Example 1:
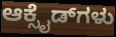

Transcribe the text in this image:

ಆಕ್ಸೈಡ್‌ಗಳು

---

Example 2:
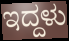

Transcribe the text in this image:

ಇದ್ದಳು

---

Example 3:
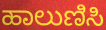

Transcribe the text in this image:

ಹಾಲುಣಿಸಿ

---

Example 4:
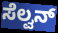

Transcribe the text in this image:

ಸೆಲ್ವನ್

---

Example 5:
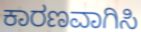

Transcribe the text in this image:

ಕಾರಣವಾಗಿಸಿ